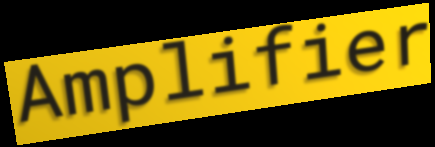
Amplifier